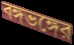
বঙ্গভঙ্গের